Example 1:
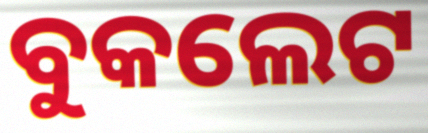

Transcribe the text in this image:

ବୁକଲେଟ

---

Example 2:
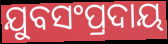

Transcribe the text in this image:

ଯୁବସଂପ୍ରଦାୟ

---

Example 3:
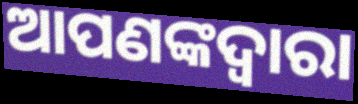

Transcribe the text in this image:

ଆପଣଙ୍କଦ୍ଵାରା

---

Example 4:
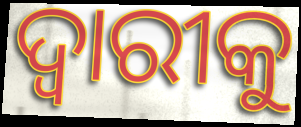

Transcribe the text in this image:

ଦ୍ଵାରୀକୁ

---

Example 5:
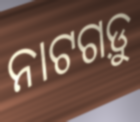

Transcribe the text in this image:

ନାଟଗଡ଼ୁ